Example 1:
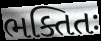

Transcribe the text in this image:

ભક્તિતઃ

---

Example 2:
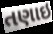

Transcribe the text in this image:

તણાઇ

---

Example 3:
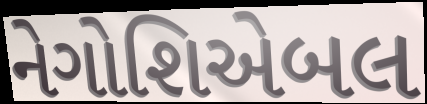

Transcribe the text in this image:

નેગોશિએબલ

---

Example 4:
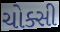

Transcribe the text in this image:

ચોક્સી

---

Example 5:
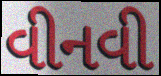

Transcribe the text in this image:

વીનવી